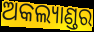
ଅକଲ୍ୟାଣ୍ଡର